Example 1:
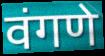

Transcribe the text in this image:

वंगणे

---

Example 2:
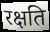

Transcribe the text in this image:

रक्षति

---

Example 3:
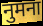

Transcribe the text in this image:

नुमना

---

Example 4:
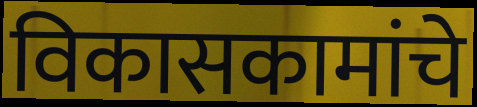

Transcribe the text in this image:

विकासकामांचे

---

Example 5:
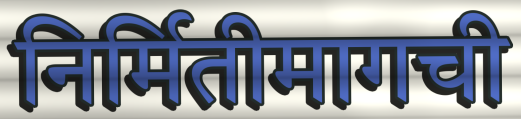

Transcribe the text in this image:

निर्मितीमागची